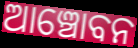
ଆଞ୍ଚୋବନ